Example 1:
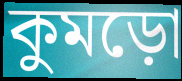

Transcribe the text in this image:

কুমড়ো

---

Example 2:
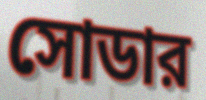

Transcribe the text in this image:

সোডার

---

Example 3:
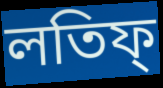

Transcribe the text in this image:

লতিফ্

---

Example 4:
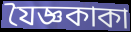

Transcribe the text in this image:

যৈজ্ঞকাকা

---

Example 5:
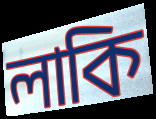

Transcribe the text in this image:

লাকি